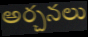
అర్చనలు